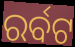
ରର୍ବଟ